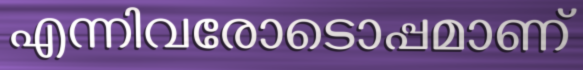
എന്നിവരോടൊപ്പമാണ്